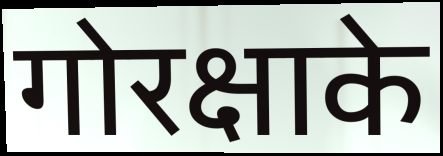
गोरक्षाके